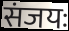
संजयः